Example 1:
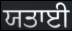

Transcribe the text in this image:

ਯਤਾਈ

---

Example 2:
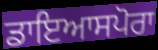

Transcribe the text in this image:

ਡਾਇਆਸਪੋਰਾ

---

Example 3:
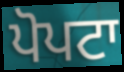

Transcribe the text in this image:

ਪੋਪਟਾ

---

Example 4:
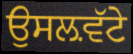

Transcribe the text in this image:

ਉਸਲ਼ਵੱਟੇ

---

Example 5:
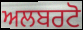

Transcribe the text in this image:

ਅਲਬਰਟੋ